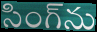
సింగ్‌ను